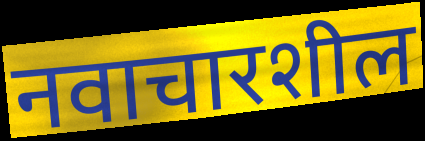
नवाचारशील